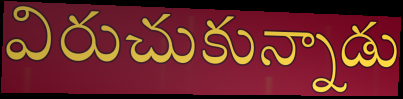
విరుచుకున్నాడు